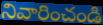
నివారించండి